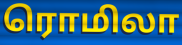
ரொமிலா